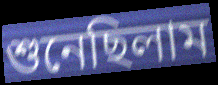
শুনেছিলাম